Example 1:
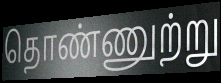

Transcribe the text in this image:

தொண்ணுற்று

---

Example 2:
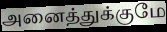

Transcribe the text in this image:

அனைத்துக்குமே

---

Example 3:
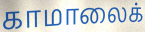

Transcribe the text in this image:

காமாலைக்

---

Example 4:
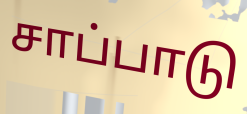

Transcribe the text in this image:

சாப்பாடு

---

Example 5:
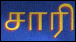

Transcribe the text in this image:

சாரி